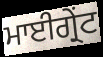
ਮਾਈਗ੍ਰੇਂਟ